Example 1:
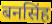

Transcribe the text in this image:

बनसिंह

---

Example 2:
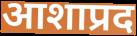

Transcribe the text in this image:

आशाप्रद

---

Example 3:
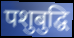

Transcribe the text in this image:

पशुबुद्धि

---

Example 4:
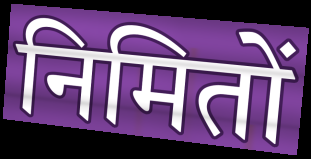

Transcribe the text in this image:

निमितों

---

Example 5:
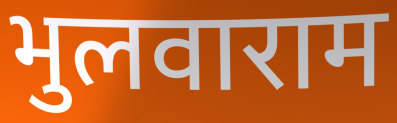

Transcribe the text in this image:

भुलवाराम